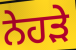
ਨੇਹੜੇ